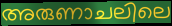
അരുണാചലിലെ